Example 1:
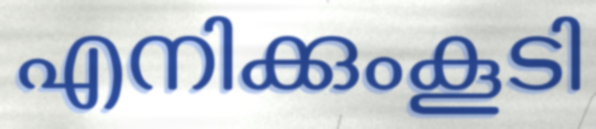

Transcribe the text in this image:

എനിക്കുംകൂടി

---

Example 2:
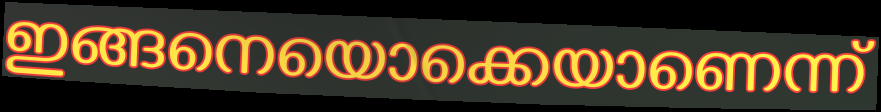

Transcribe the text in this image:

ഇങ്ങനെയൊക്കെയാണെന്ന്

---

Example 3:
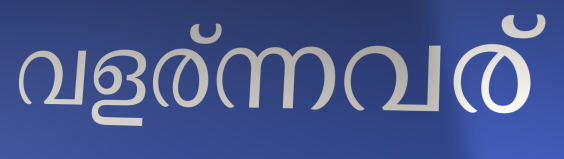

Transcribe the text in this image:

വളര്ന്നവര്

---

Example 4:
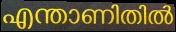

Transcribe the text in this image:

എന്താണിതിൽ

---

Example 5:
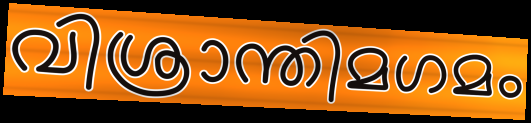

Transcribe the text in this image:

വിശ്രാന്തിമഗമം